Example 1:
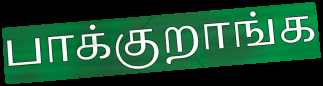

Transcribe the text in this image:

பாக்குறாங்க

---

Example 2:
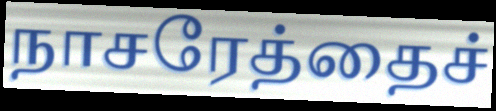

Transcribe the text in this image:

நாசரேத்தைச்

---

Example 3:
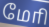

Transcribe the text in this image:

மேரி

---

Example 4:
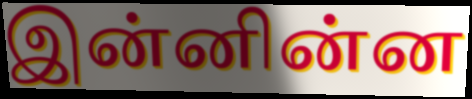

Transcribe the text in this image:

இன்னின்ன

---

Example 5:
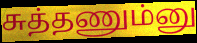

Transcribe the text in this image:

சுத்தணும்னு